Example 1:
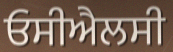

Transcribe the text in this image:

ਓਸੀਐਲਸੀ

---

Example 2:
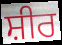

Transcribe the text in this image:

ਸ਼ੀਰ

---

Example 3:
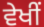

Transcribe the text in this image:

ਵੇਖੀਂ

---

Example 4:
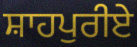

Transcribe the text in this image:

ਸ਼ਾਹਪੁਰੀਏ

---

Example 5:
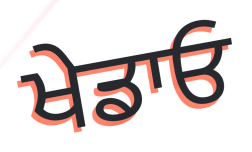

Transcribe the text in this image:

ਖੇਡਾਓ